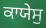
ਕਾਯੇਸੁ